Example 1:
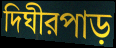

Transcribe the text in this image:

দিঘীরপাড়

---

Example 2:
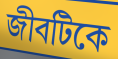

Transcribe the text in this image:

জীবটিকে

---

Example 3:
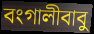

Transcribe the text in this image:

বংগালীবাবু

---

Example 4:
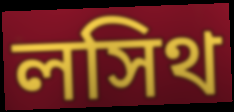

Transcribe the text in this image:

লসিথ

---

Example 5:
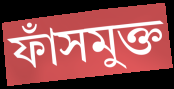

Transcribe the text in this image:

ফাঁসমুক্ত